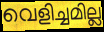
വെളിച്ചമില്ല